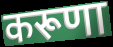
करूणा